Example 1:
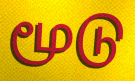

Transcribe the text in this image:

மூடு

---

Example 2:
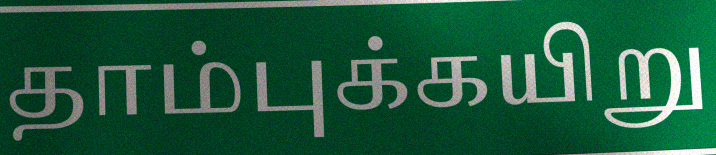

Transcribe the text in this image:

தாம்புக்கயிறு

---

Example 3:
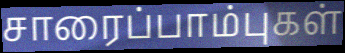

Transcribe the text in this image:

சாரைப்பாம்புகள்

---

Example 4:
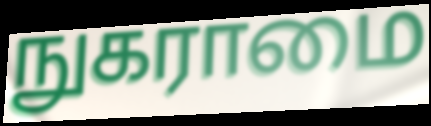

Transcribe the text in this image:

நுகராமை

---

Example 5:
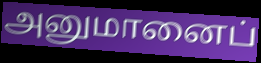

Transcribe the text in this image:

அனுமானைப்